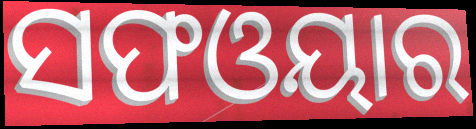
ସଫଓୟାର